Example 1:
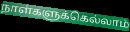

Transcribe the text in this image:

நாள்களுக்கெல்லாம்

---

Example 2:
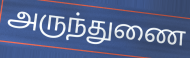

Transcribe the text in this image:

அருந்துணை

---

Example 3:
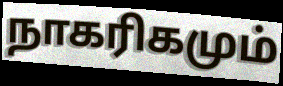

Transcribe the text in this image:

நாகரிகமும்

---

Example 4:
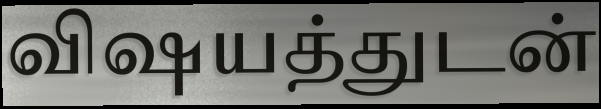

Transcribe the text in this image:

விஷயத்துடன்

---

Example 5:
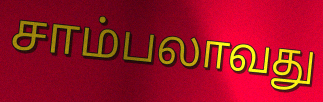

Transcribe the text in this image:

சாம்பலாவது